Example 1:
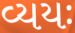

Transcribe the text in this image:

વ્યયઃ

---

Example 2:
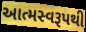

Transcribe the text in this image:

આત્મસ્વરૂપથી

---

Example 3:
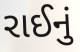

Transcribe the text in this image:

રાઈનું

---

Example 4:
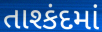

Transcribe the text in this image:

તાશ્કંદમાં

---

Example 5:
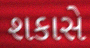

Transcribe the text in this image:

શકાસે